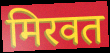
मिरवत